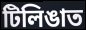
টিলিঙাত